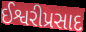
ઈશ્વરીપ્રસાદ